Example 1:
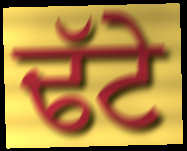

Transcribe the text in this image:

ਢੱਟੇ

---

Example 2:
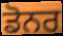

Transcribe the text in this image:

ਡੋਨਰ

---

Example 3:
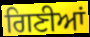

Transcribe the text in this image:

ਗਿਣੀਆਂ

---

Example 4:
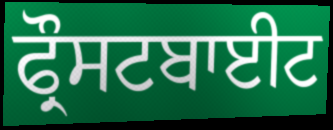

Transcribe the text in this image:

ਫ੍ਰੌਸਟਬਾਈਟ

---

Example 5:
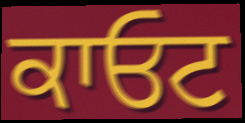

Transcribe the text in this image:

ਕਾਓਟ